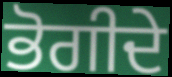
ਭੋਗੀਦੇ